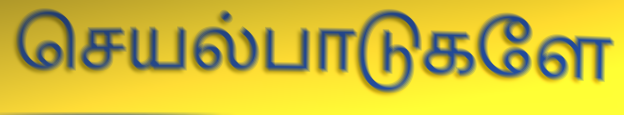
செயல்பாடுகளே